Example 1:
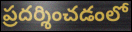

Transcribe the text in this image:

ప్రదర్శించడంలో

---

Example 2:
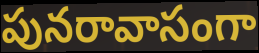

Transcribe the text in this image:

పునరావాసంగా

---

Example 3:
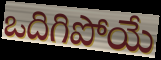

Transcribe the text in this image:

ఒదిగిపోయే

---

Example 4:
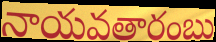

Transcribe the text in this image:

నాయవతారంబు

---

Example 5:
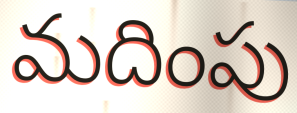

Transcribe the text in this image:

మదింపు